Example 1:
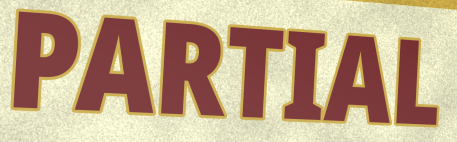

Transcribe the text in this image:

PARTIAL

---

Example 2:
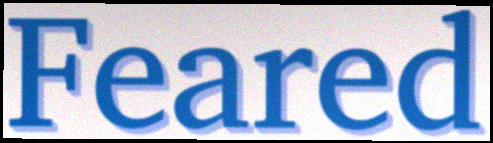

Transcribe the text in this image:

Feared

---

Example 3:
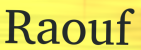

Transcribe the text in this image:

Raouf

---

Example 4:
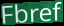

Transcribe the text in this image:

Fbref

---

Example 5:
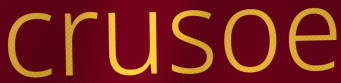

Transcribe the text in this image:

crusoe